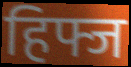
हिफ्ज